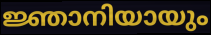
ജ്ഞാനിയായും